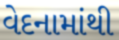
વેદનામાંથી